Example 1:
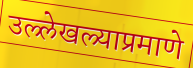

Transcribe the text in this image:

उल्लेखल्याप्रमाणे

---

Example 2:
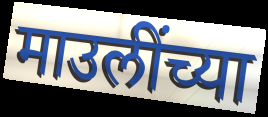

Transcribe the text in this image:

माउलींच्या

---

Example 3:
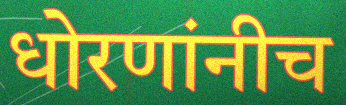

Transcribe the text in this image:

धोरणांनीच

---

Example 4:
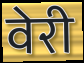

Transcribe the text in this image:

वेरी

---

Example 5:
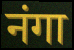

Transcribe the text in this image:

नंगा